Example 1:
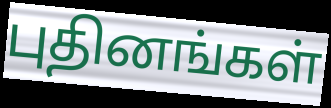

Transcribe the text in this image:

புதினங்கள்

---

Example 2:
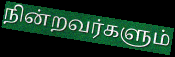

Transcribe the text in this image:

நின்றவர்களும்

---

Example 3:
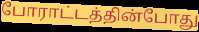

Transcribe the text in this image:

போராட்டத்தின்போது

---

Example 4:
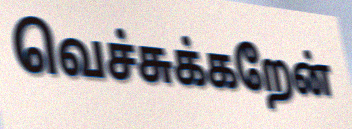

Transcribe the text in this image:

வெச்சுக்கறேன்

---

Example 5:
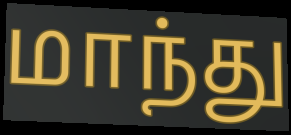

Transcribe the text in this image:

மாந்து